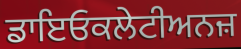
ਡਾਇਓਕਲੇਟੀਅਨਜ਼